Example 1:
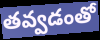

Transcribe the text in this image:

తవ్వడంతో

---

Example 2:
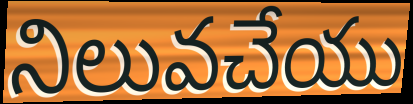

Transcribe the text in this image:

నిలువచేయు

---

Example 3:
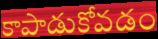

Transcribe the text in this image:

కాపాడుకోవడం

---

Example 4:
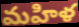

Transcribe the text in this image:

మహిళ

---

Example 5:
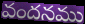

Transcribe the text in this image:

వందనము